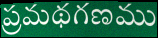
ప్రమథగణము